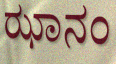
ಝಾನಂ